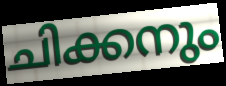
ചിക്കനും